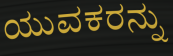
ಯುವಕರನ್ನು